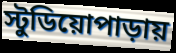
স্টুডিয়োপাড়ায়